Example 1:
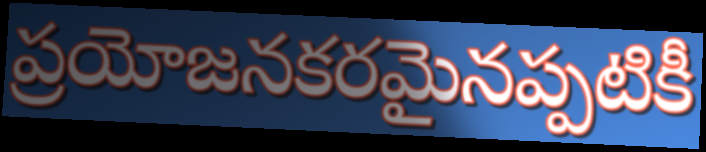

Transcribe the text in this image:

ప్రయోజనకరమైనప్పటికీ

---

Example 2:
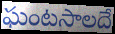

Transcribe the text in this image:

ఘంటసాలదే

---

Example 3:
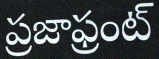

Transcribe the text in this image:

ప్రజాఫ్రంట్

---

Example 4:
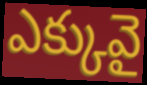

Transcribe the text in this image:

ఎక్కువై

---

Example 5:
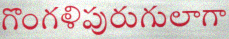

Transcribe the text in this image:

గొంగళిపురుగులాగా